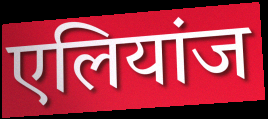
एलियांज